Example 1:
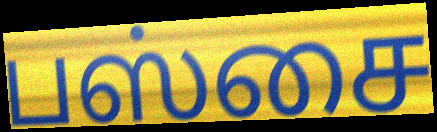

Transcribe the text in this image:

பஸ்சை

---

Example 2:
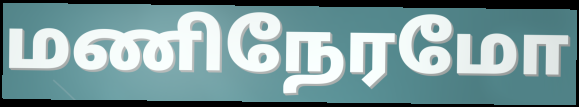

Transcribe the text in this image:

மணிநேரமோ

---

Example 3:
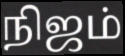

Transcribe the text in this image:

நிஜம்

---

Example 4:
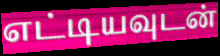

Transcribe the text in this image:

எட்டியவுடன்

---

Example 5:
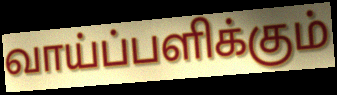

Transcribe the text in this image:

வாய்ப்பளிக்கும்